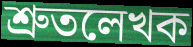
শ্রুতলেখক